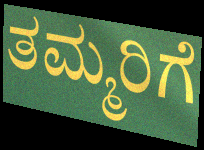
ತಮ್ಮರಿಗೆ